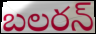
బలరన్